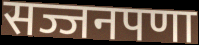
सज्जनपणा